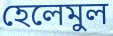
হেলেমুল